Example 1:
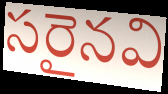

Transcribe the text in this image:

సరైనవి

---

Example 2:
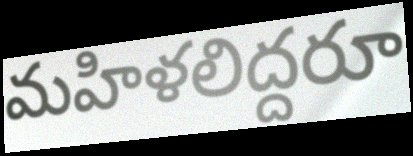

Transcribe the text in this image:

మహిళలిద్దరూ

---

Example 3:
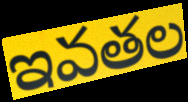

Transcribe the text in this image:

ఇవతల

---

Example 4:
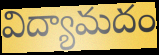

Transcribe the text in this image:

విద్యామదం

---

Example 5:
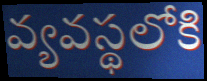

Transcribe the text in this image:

వ్యవస్థలోకి